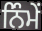
ਨਿੰਮੇਂ